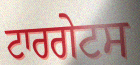
ਟਾਰਗੇਟਸ